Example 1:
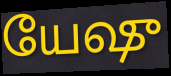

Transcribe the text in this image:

யேஷு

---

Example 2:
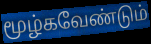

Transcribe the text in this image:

மூழ்கவேண்டும்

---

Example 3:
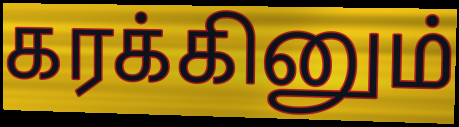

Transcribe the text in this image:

கரக்கினும்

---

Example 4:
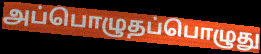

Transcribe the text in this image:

அப்பொழுதப்பொழுது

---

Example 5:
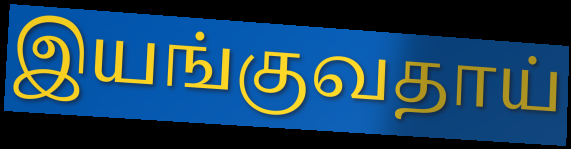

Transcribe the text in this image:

இயங்குவதாய்